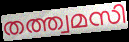
തത്ത്വമസി